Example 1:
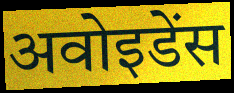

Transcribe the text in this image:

अवोइडेंस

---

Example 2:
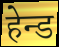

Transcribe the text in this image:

हेन्ड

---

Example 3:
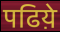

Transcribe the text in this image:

पढिय़े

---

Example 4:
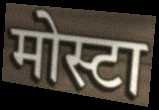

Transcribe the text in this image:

मोस्टा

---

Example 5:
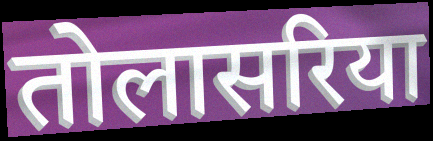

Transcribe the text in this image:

तोलासरिया